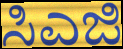
ಸಿಎಜಿ